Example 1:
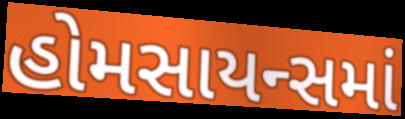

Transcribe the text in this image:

હોમસાયન્સમાં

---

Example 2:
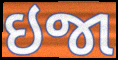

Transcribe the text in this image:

ઇજા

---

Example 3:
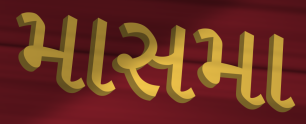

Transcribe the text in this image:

માસમા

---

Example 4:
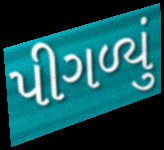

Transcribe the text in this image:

પીગળ્યું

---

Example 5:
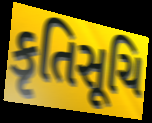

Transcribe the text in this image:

કૃતિસૂચિ